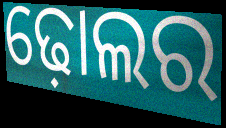
ଢ଼ୋଲର